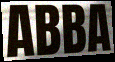
ABBA